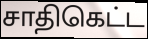
சாதிகெட்ட